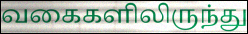
வகைகளிலிருந்து